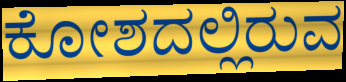
ಕೋಶದಲ್ಲಿರುವ